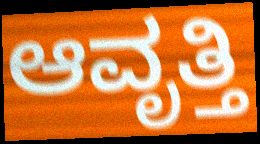
ಆವೃತ್ತಿ